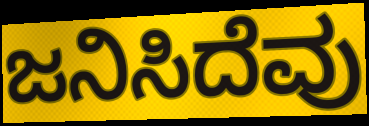
ಜನಿಸಿದೆವು